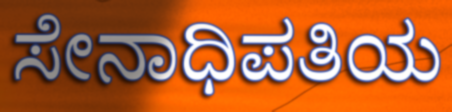
ಸೇನಾಧಿಪತಿಯ